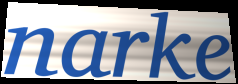
narke